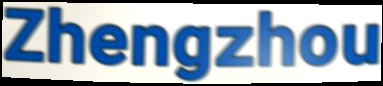
Zhengzhou